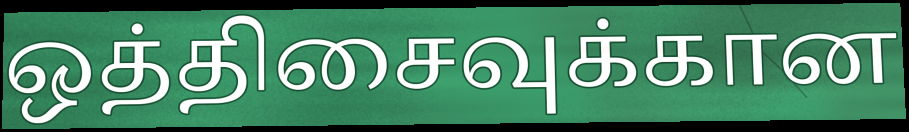
ஒத்திசைவுக்கான